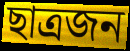
ছাত্ৰজন